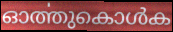
ഓൎത്തുകൊൾക